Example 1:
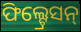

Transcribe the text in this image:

ଫିଲ୍ଟ୍ରେସନ୍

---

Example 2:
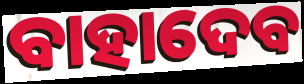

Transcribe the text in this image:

ବାହାଦେବ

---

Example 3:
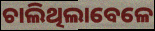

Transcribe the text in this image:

ଚାଲିଥିଲାବେଳେ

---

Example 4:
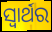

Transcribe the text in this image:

ସ୍ଵାର୍ଥର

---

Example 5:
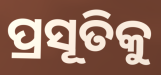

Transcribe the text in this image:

ପ୍ରସୂତିକୁ